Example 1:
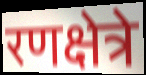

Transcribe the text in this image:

रणक्षेत्रे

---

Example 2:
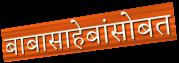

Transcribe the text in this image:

बाबासाहेबांसोबत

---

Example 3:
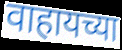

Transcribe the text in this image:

वाहायच्या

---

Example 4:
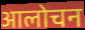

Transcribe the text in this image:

आलोचन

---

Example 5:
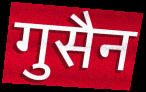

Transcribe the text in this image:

गुसैन